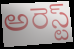
అరెస్ట్